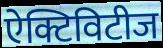
ऐक्टिविटीज